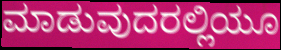
ಮಾಡುವುದರಲ್ಲಿಯೂ